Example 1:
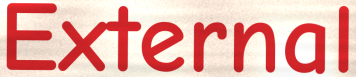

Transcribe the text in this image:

External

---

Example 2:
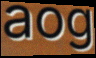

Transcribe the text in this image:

aog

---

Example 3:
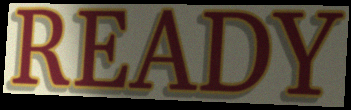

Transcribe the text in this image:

READY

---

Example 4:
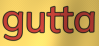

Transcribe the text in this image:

gutta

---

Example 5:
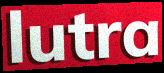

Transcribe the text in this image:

lutra